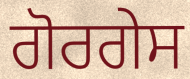
ਗੋਰਗੇਸ